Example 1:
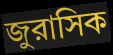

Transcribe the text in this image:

জুরাসিক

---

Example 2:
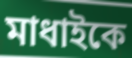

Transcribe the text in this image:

মাধাইকে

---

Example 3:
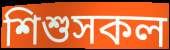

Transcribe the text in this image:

শিশুসকল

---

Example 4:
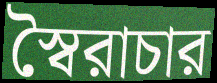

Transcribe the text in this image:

স্বৈরাচার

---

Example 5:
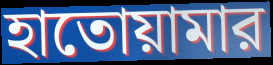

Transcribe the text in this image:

হাতোয়ামার